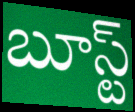
బూస్ట్